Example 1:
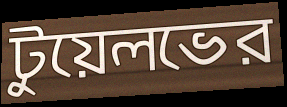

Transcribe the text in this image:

টুয়েলভের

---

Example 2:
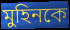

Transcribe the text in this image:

মুহিনকে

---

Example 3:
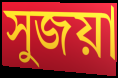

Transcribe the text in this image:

সুজয়া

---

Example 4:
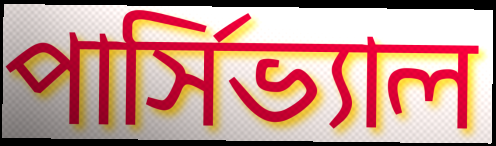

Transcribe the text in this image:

পার্সিভ্যাল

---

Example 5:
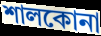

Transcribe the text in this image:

শালকোনা